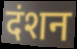
दंशन